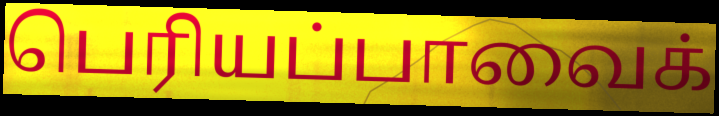
பெரியப்பாவைக்